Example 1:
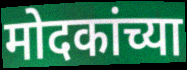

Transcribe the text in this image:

मोदकांच्या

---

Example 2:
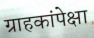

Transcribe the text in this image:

ग्राहकांपेक्षा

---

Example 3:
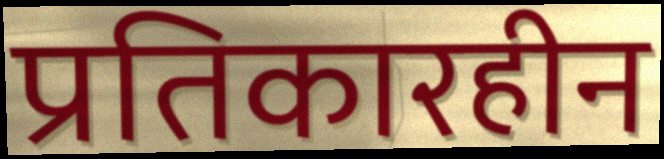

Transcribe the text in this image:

प्रतिकारहीन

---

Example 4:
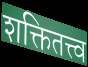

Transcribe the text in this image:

शक्तितत्त्व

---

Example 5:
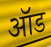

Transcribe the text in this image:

ऑड